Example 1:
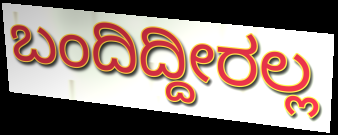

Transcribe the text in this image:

ಬಂದಿದ್ದೀರಲ್ಲ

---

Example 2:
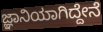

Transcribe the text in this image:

ಜ್ಞಾನಿಯಾಗಿದ್ದೇನೆ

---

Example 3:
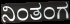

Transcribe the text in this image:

ನಿಂತಂಗ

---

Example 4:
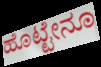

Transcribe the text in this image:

ಹೊಟ್ಟೇನೂ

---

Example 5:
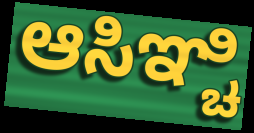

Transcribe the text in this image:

ಆಸಿಞ್ಚಿ